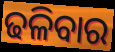
ଢଳିବାର